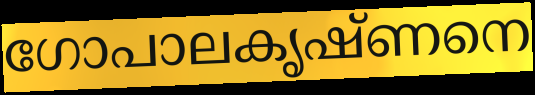
ഗോപാലകൃഷ്ണനെ